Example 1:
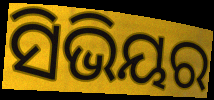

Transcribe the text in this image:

ସିଭିୟର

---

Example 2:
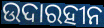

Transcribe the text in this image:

ଉଦାରହୀନ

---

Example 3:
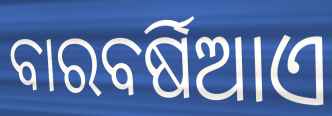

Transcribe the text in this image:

ବାରବର୍ଷିଆଏ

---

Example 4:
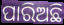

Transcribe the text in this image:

ପାରିଅଛି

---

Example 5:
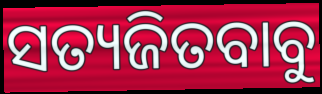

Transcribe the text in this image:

ସତ୍ୟଜିତବାବୁ